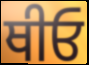
ਥੀਓ